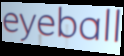
eyeball